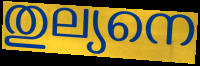
തുല്യനെ